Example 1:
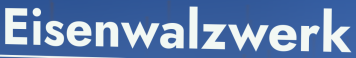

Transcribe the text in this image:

Eisenwalzwerk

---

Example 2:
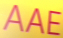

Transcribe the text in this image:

AAE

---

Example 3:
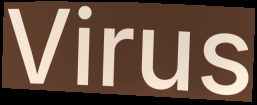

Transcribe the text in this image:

Virus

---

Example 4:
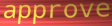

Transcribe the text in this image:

approve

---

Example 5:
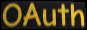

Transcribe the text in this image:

OAuth